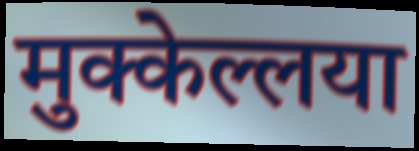
मुक्केल्लया